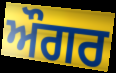
ਔਗਰ